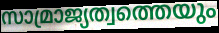
സാമ്രാജ്യത്വത്തെയും